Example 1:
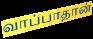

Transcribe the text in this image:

வாப்பாதான்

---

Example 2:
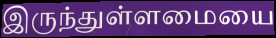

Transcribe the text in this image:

இருந்துள்ளமையை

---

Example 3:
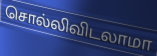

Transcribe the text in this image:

சொல்லிவிடலாமா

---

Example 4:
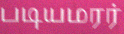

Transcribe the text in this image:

படியமரர்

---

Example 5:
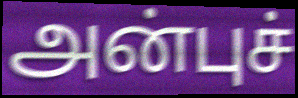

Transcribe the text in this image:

அன்புச்